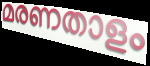
മരണതാളം